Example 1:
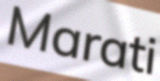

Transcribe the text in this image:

Marati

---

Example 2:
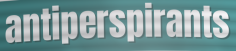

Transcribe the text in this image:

antiperspirants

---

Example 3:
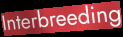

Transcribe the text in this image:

Interbreeding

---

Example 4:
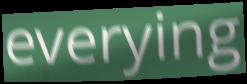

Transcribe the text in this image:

everying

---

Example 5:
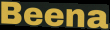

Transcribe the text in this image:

Beena